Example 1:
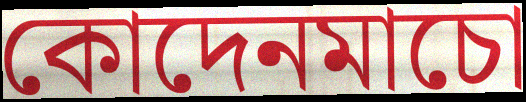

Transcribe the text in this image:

কোদেনমাচো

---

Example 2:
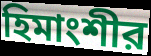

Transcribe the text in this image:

হিমাংশীর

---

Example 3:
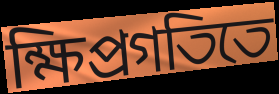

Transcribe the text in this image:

ক্ষিপ্রগতিতে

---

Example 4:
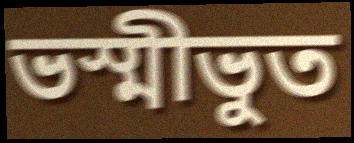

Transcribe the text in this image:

ভস্মীভুত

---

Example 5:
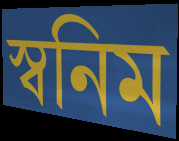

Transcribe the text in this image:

স্বনিম